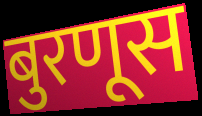
बुरणूस